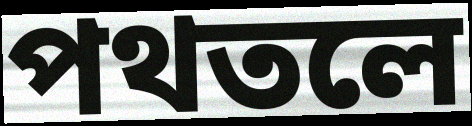
পথতলে